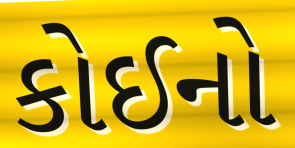
કોઈનો